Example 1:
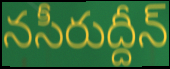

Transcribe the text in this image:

నసీరుద్దీన్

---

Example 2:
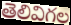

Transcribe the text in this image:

తెలివిగల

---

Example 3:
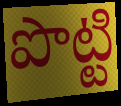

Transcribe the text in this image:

పొట్టి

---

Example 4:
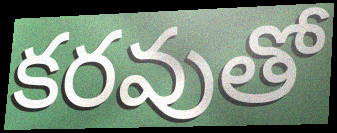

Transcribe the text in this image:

కరవుతో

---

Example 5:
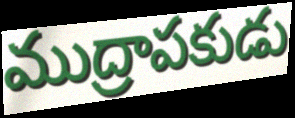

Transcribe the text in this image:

ముద్రాపకుడు